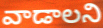
వాడాలని